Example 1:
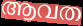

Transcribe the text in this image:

ആവത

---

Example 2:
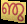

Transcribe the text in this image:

ഞു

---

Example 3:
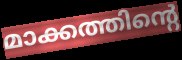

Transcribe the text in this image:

മാക്കത്തിന്റെ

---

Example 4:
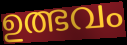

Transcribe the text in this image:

ഉത്ഭവം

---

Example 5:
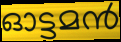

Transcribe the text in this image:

ഓട്ടമൻ